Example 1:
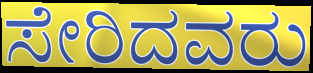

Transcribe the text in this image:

ಸೇರಿದವರು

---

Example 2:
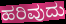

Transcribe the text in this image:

ಹರಿವುದು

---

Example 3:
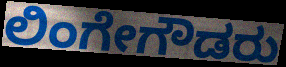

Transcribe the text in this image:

ಲಿಂಗೇಗೌಡರು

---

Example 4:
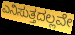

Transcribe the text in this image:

ಎನಿಸುತ್ತದಲ್ಲವೇ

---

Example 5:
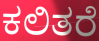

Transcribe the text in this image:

ಕಲಿತರೆ